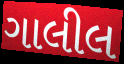
ગાલીલ